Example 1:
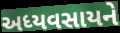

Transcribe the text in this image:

અધ્યવસાયને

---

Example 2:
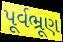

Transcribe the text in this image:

પૂર્વભ્રૂણ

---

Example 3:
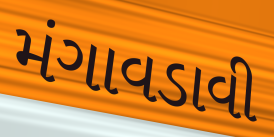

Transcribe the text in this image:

મંગાવડાવી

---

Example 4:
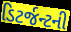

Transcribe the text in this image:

ડિટર્જન્ટની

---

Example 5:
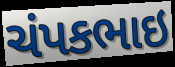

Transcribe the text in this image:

ચંપકભાઇ